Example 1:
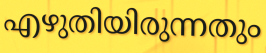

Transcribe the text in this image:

എഴുതിയിരുന്നതും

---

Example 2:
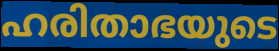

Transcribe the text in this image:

ഹരിതാഭയുടെ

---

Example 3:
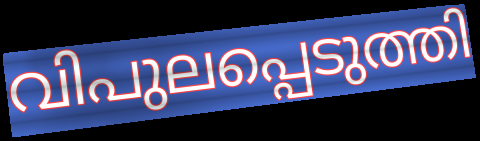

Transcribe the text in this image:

വിപുലപ്പെടുത്തി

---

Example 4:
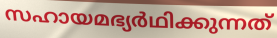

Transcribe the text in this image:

സഹായമഭ്യർഥിക്കുന്നത്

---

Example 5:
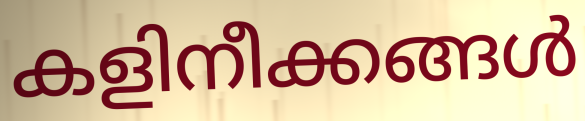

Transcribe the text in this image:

കളിനീക്കങ്ങൾ